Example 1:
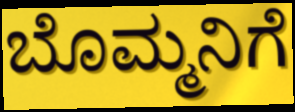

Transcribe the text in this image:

ಬೊಮ್ಮನಿಗೆ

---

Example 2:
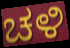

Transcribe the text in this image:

ಚಳಿ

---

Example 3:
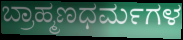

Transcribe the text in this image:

ಬ್ರಾಹ್ಮಣಧರ್ಮಗಳ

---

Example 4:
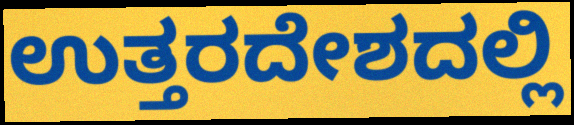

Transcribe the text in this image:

ಉತ್ತರದೇಶದಲ್ಲಿ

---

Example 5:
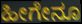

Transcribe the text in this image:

ಹೀಗೇನೂ